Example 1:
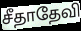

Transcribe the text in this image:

சீதாதேவி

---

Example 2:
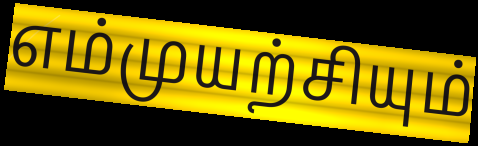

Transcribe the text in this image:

எம்முயற்சியும்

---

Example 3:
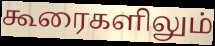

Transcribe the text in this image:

கூரைகளிலும்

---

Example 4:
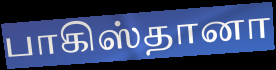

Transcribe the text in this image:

பாகிஸ்தானா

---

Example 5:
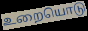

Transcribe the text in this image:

உறையொடு